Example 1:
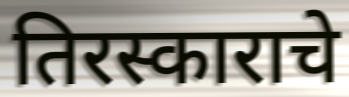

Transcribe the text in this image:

तिरस्काराचे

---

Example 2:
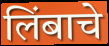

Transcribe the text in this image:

लिंबाचे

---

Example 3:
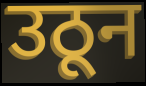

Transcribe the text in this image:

उठून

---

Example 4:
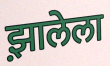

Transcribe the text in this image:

झ़ालेला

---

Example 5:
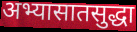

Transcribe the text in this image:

अभ्यासातसुद्धा